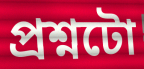
প্ৰশ্নটো